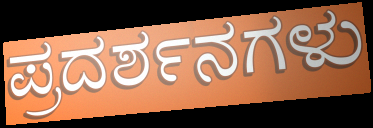
ಪ್ರದರ್ಶನಗಳು